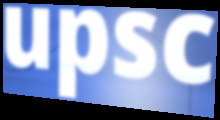
upsc